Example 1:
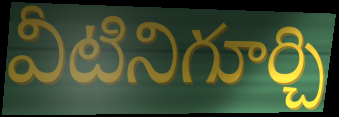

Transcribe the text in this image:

వీటినిగూర్చి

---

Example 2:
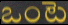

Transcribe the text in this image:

ఒంటె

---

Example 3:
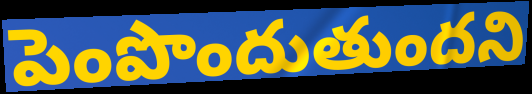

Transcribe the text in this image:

పెంపొందుతుందని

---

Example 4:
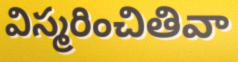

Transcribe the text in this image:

విస్మరించితివా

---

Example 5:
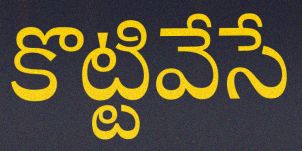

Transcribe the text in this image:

కొట్టివేసే